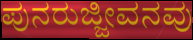
ಪುನರುಜ್ಜೀವನವು